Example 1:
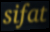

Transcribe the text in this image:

sifat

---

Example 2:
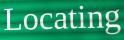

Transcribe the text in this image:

Locating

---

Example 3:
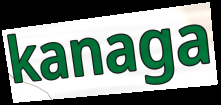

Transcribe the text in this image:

kanaga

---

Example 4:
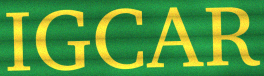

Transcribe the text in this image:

IGCAR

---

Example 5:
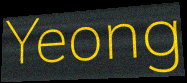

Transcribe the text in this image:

Yeong